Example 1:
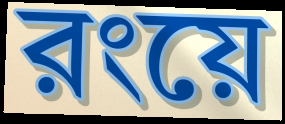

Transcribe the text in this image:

রংয়ে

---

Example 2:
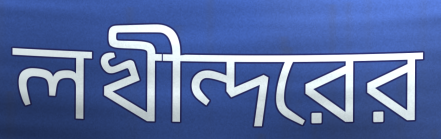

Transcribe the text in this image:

লখীন্দরের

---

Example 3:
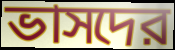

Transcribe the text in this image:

ভাসদের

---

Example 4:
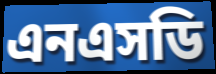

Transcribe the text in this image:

এনএসডি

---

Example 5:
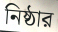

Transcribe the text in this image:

নিষ্ঠার